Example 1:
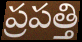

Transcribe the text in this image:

ప్రపత్తి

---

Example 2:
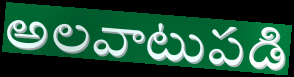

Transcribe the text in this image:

అలవాటుపడి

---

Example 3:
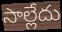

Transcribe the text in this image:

సాల్లేదు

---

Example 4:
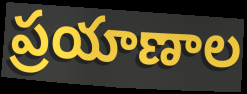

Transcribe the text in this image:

ప్రయాణాల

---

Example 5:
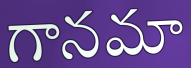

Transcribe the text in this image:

గానమా